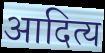
आदित्‍य